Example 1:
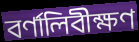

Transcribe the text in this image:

বর্ণালিবীক্ষণ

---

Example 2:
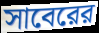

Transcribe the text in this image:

সাবেরের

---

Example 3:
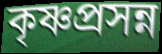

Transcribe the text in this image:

কৃষ্ণপ্রসন্ন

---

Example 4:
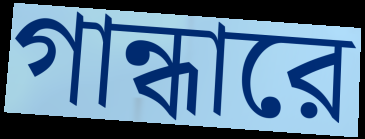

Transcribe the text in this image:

গান্ধারে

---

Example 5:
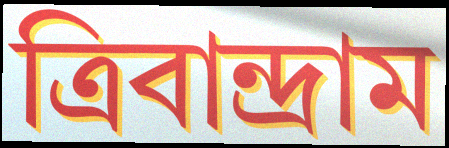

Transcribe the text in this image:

ত্রিবান্দ্রাম